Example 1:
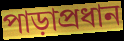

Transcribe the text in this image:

পাড়াপ্রধান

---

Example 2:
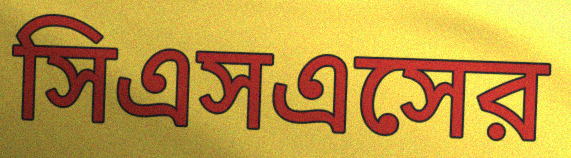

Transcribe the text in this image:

সিএসএসের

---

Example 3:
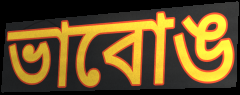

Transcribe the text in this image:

ভাবোঙ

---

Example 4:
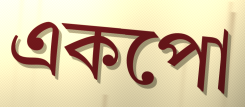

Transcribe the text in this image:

একপো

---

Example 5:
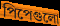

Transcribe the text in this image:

পিপেগুলো